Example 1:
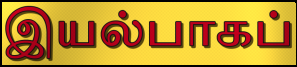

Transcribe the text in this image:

இயல்பாகப்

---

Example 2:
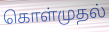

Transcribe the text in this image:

கொள்முதல்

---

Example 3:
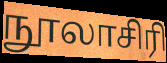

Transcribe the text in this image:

நூலாசிரி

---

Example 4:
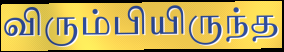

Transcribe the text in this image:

விரும்பியிருந்த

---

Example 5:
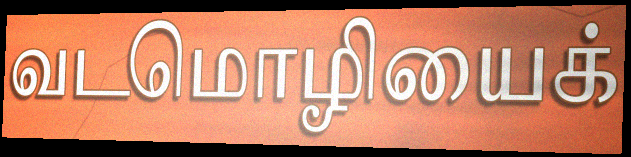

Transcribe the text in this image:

வடமொழியைக்